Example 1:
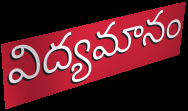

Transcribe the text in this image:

విద్యమానం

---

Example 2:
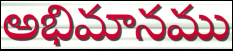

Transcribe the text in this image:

అభిమానము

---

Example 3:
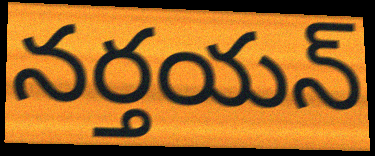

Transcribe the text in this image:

నర్తయన్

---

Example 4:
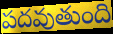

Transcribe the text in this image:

పదవుతుంది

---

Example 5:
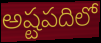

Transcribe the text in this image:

అష్టపదిలో